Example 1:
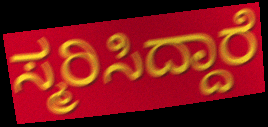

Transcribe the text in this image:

ಸ್ಮರಿಸಿದ್ದಾರೆ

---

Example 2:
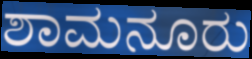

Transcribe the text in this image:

ಶಾಮನೂರು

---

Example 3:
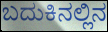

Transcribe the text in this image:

ಬದುಕಿನಲ್ಲಿನ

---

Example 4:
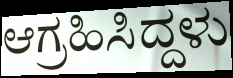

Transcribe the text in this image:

ಆಗ್ರಹಿಸಿದ್ದಳು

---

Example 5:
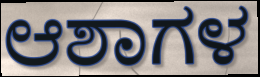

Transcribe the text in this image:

ಆಶಾಗಳ